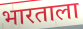
भारताला